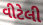
વીટેલી